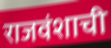
राजवंशाची